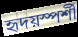
হৃদয়স্পর্শী